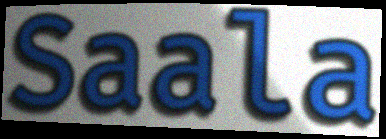
Saala